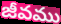
జీవము